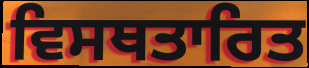
ਵਿਸਥਤਾਰਿਤ